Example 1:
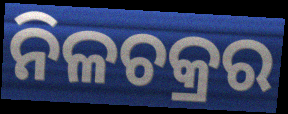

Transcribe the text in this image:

ନିଳଚକ୍ରର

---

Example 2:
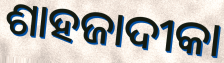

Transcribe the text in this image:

ଶାହଜାଦୀକା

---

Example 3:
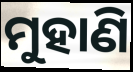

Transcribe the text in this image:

ମୁହାଣି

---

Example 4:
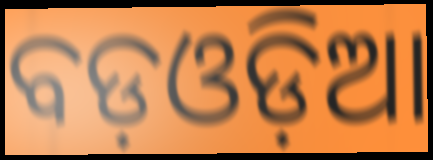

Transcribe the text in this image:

ବଡ଼ଓଡ଼ିଆ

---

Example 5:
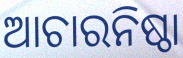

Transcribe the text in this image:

ଆଚାରନିଷ୍ଠା